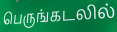
பெருங்கடலில்